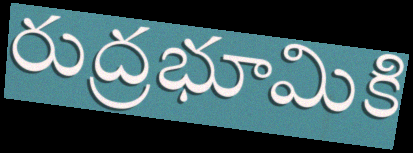
రుద్రభూమికి